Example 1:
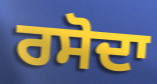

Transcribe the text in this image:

ਰਸੋਦਾ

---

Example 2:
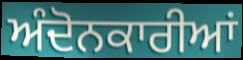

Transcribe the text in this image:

ਅੰਦੋਨਕਾਰੀਆਂ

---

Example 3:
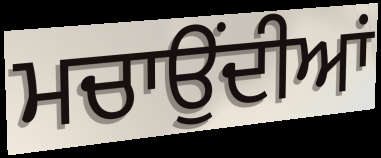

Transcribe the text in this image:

ਮਚਾਉਂਦੀਆਂ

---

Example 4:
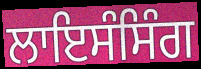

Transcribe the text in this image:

ਲਾਇਸੰਸਿੰਗ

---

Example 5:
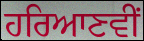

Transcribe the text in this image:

ਹਰਿਆਣਵੀਂ